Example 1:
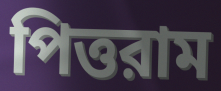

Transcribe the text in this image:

পিত্তরাম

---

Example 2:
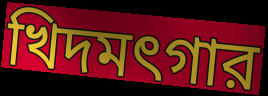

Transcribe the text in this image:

খিদমৎগার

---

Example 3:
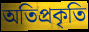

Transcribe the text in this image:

অতিপ্রকৃতি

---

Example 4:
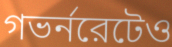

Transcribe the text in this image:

গভর্নরেটেও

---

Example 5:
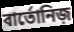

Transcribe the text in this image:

বার্তোনিজ়